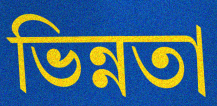
ভিন্নতা